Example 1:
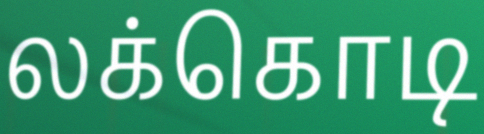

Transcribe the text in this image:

லக்கொடி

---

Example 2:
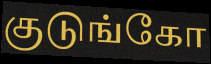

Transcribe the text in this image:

குடுங்கோ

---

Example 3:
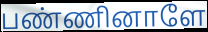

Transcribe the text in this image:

பண்ணினாளே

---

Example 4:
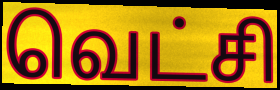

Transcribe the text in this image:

வெட்சி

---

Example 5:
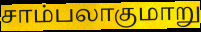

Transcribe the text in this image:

சாம்பலாகுமாறு